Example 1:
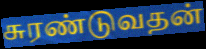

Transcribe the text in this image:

சுரண்டுவதன்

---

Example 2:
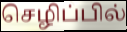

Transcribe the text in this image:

செழிப்பில்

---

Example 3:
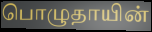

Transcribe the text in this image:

பொழுதாயின்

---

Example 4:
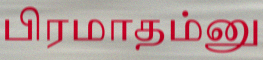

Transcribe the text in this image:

பிரமாதம்னு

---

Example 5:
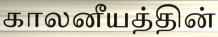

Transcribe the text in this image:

காலனீயத்தின்